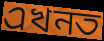
এখনত